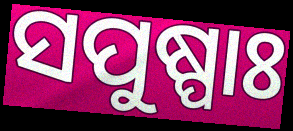
ସପୁଷ୍ପାଃ